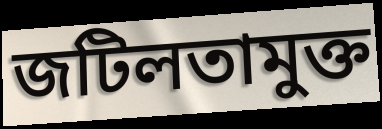
জটিলতামুক্ত